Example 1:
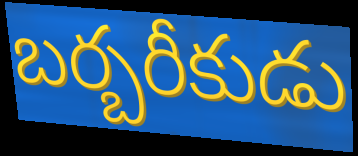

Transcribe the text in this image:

బర్బరీకుడు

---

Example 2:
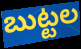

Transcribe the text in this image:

బుట్టల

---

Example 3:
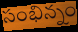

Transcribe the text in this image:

సంభిన్నం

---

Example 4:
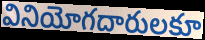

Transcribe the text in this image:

వినియోగదారులకూ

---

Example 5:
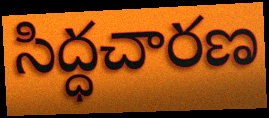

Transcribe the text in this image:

సిద్ధచారణ